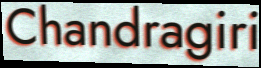
Chandragiri